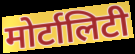
मोर्टालिटी